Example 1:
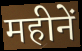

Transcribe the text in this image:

महीनें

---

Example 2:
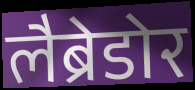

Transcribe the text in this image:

लैब्रेडोर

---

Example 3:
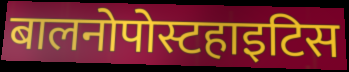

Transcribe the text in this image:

बालनोपोस्टहाइटिस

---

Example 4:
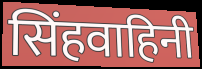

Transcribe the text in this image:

सिंहवाहिनी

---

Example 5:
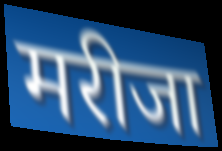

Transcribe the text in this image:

मरीजा